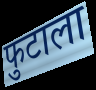
फुटाला